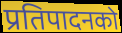
प्रतिपादनको